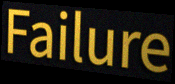
Failure